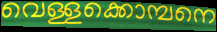
വെള്ളക്കൊമ്പനെ